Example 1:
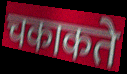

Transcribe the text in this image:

चकाकते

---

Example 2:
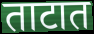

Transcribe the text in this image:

ताटात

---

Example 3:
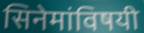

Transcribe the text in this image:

सिनेमांविषयी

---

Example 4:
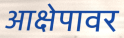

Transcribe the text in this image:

आक्षेपावर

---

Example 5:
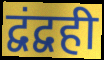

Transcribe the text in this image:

द्वंद्वही